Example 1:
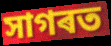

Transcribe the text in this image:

সাগৰত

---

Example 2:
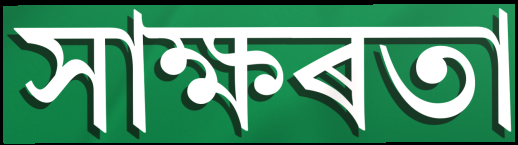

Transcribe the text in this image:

সাক্ষৰতা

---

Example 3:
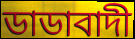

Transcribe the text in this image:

ডাডাবাদী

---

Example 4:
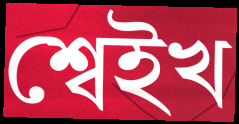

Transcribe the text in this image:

শ্বেইখ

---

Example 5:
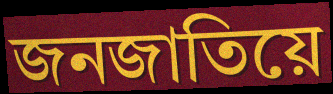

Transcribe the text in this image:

জনজাতিয়ে